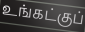
உங்கட்குப்